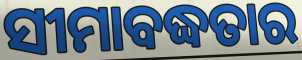
ସୀମାବଦ୍ଧତାର